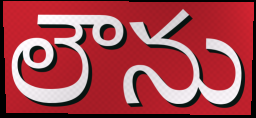
లౌను